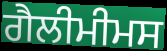
ਗੈਲੀਮੀਮਸ